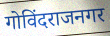
गोविंदराजनगर